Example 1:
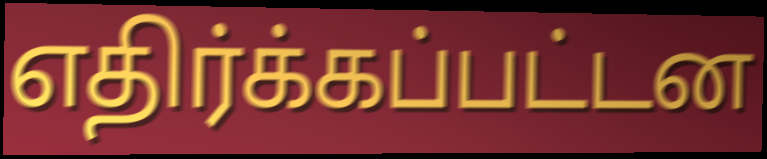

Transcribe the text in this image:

எதிர்க்கப்பட்டன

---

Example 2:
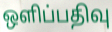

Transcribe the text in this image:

ஒளிப்பதிவு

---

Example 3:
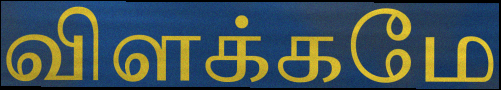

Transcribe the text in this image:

விளக்கமே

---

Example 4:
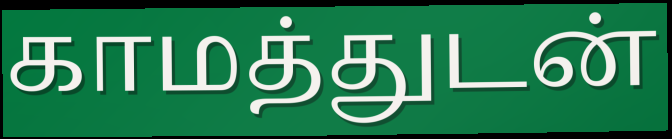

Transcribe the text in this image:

காமத்துடன்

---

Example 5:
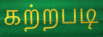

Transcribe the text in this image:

கற்றபடி